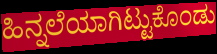
ಹಿನ್ನಲೆಯಾಗಿಟ್ಟುಕೊಂಡು